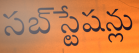
సబ్‌స్టేషన్లు